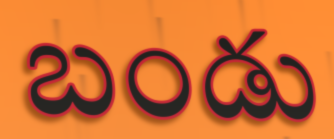
బండు